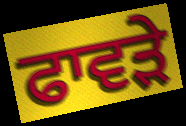
ਫਾਵੜੇ